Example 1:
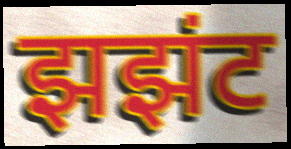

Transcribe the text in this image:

झझंट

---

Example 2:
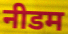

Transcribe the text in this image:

नीडम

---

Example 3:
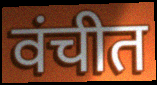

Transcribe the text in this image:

वंचीत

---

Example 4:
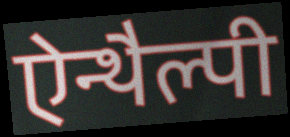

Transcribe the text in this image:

ऐन्थैल्पी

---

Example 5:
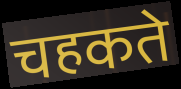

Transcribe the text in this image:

चहकते